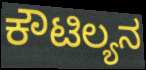
ಕೌಟಿಲ್ಯನ